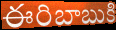
ఈరిబాబుకి